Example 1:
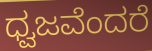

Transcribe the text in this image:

ಧ್ವಜವೆಂದರೆ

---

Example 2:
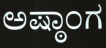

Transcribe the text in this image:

ಅಷ್ಠಾಂಗ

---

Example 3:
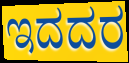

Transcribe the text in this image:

ಇದದರ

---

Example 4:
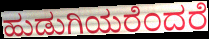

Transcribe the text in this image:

ಹುಡುಗಿಯರೆಂದರೆ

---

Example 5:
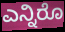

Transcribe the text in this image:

ಎನ್ನಿರೊ